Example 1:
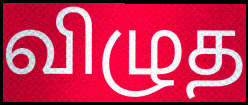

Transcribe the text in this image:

விழுத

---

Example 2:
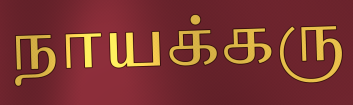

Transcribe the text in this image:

நாயக்கரு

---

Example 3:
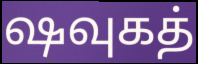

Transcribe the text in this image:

ஷவுகத்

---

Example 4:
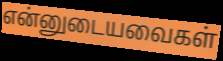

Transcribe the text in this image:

என்னுடையவைகள்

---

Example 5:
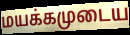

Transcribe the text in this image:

மயக்கமுடைய